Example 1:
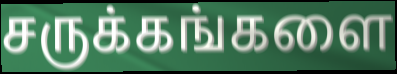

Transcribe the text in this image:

சருக்கங்களை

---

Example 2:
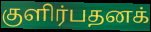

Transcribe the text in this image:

குளிர்பதனக்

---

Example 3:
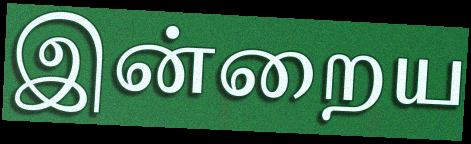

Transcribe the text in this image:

இன்றைய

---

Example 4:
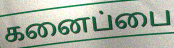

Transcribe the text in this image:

கனைப்பை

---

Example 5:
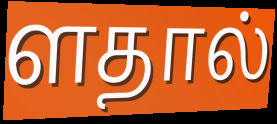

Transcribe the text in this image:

ளதால்